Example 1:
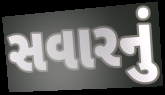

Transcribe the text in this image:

સવારનું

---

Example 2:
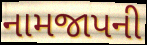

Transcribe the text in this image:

નામજાપની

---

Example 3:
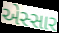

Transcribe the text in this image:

એસ્સાર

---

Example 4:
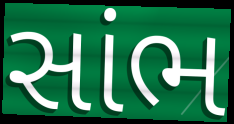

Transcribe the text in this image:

સાંભ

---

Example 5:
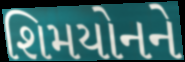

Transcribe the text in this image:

શિમયોનને